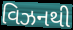
વિઝનથી